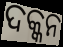
ଦକ୍କନ